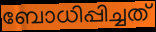
ബോധിപ്പിച്ചത്